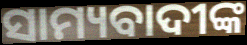
ସାମ୍ୟବାଦୀଙ୍କ